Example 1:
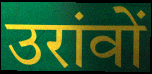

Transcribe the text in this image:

उरांवों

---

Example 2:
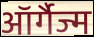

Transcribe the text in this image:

ऑर्गैज्म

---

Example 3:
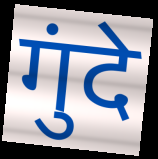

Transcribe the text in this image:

गुंदे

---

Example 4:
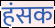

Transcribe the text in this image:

हंसक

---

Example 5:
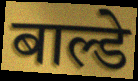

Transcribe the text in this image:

बाल्डे